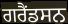
ਗਰੈਂਡਸਨ